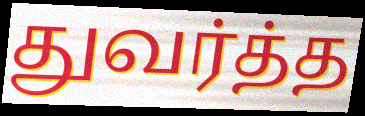
துவர்த்த